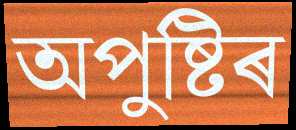
অপুষ্টিৰ